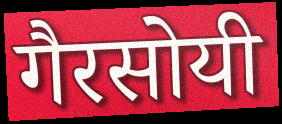
गैरसोयी